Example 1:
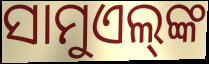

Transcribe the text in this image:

ସାମୁଏଲ୍‌ଙ୍କ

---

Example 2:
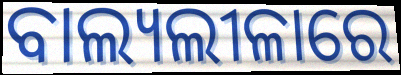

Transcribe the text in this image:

ବାଲ୍ୟଲୀଳାରେ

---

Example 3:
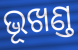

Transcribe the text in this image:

ଭୂଖଣ୍ଡ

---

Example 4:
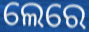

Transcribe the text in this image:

ଲେରେ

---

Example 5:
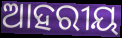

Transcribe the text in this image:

ଆହରୀୟ